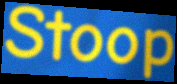
Stoop